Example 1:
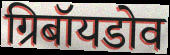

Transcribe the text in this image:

ग्रिबॉयडोव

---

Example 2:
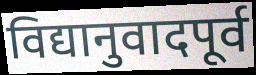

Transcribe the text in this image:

विद्यानुवादपूर्व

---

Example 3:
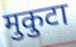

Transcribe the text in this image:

मुकुटा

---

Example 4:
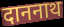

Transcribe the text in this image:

दाननाथ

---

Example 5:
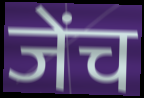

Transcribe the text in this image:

जेंच